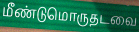
மீண்டுமொருதடவை